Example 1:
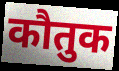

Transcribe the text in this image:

कौतुक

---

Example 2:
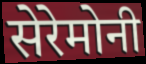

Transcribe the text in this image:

सेरेमोनी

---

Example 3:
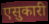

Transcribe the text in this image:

एसुकारी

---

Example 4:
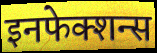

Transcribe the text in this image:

इनफेक्शन्स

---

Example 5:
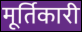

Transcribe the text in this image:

मूर्तिकारी